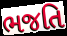
ભજતિ